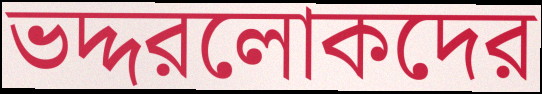
ভদ্দরলোকদের